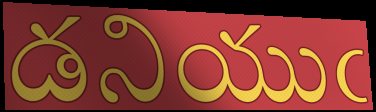
డనియుఁ